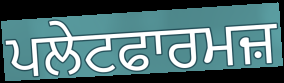
ਪਲੇਟਫਾਰਮਜ਼